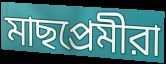
মাছপ্রেমীরা